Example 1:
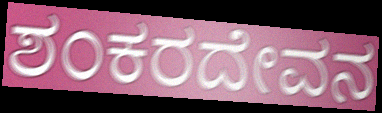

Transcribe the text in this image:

ಶಂಕರದೇವನ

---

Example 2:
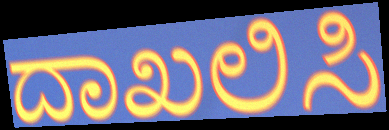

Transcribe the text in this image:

ದಾಖಲಿಸಿ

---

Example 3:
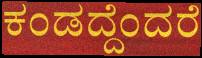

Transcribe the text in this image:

ಕಂಡದ್ದೆಂದರೆ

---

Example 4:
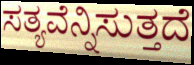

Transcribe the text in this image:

ಸತ್ಯವೆನ್ನಿಸುತ್ತದೆ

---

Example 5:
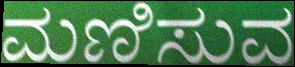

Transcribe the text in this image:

ಮಣಿಸುವ